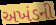
અખંડની